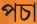
পচা